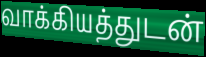
வாக்கியத்துடன்